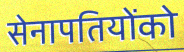
सेनापतियोंको